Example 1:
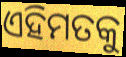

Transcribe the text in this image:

ଏହିମତକୁ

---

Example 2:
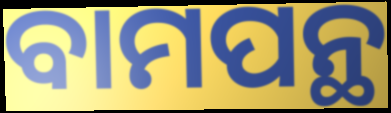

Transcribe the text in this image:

ବାମପନ୍ଥ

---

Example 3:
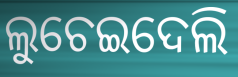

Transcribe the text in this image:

ଲୁଚେଇଦେଲି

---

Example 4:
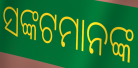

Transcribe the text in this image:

ସଙ୍କଟମାନଙ୍କ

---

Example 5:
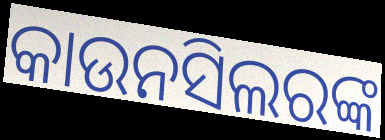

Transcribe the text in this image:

କାଉନସିଲରଙ୍କ